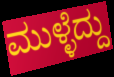
ಮುಳ್ಳೆದ್ದು